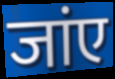
जांए